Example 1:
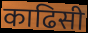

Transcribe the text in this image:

काढिसी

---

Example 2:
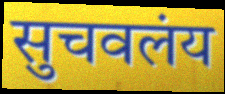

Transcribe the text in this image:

सुचवलंय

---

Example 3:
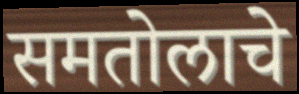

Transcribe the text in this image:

समतोलाचे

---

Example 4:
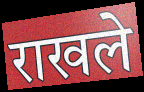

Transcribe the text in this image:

राखले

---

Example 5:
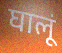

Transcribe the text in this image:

घालूं